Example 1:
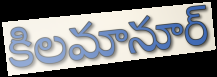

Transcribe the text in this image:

కిలమానూర్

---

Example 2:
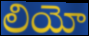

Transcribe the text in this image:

లియో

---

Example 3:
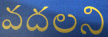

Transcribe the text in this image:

వదలని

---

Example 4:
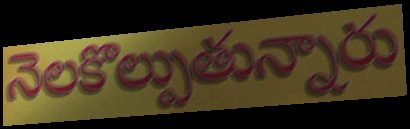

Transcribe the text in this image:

నెలకొల్పుతున్నారు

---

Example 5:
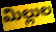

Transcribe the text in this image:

మిల్లుల